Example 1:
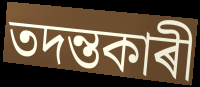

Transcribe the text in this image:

তদন্তকাৰী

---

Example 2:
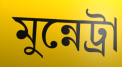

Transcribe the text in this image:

মুন্নেট্ৰা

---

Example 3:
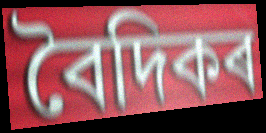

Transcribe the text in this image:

বৈদিকৰ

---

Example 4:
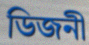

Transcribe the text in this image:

ডিজনী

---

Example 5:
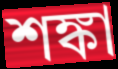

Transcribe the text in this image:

শঙ্কা